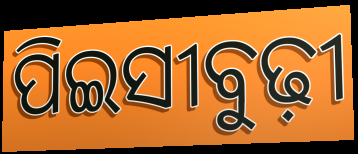
ପିଇସୀବୁଢ଼ୀ